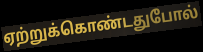
ஏற்றுக்கொண்டதுபோல்